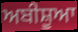
ਅਬੀਸ਼ੂਆ